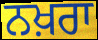
ਨਖ਼ਰਾ